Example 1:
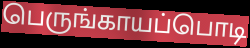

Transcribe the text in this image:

பெருங்காயப்பொடி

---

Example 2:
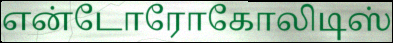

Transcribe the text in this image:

என்டோரோகோலிடிஸ்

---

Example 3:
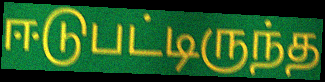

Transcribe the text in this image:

ஈடுபட்டிருந்த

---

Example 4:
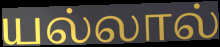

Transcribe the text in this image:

யல்லால்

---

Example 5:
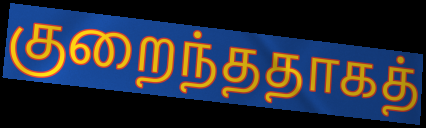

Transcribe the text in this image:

குறைந்ததாகத்